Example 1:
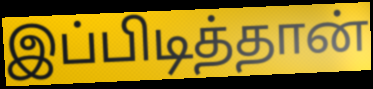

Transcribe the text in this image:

இப்பிடித்தான்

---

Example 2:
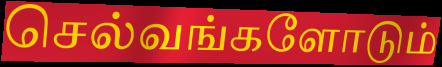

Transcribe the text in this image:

செல்வங்களோடும்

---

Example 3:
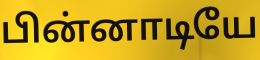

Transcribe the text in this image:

பின்னாடியே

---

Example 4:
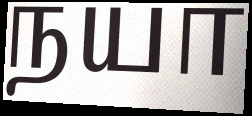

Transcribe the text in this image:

நயா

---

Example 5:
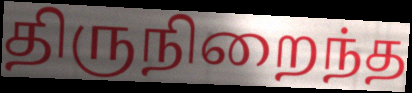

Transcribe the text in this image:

திருநிறைந்த